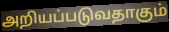
அறியப்படுவதாகும்